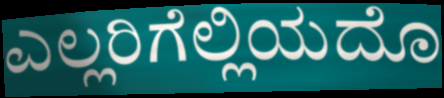
ಎಲ್ಲರಿಗೆಲ್ಲಿಯದೊ